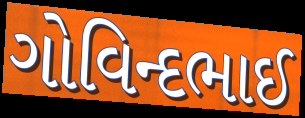
ગોવિન્દભાઈ